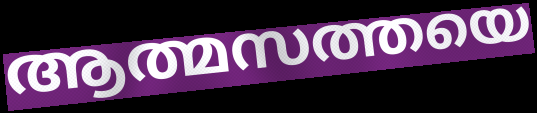
ആത്മസത്തയെ